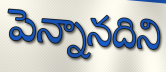
పెన్నానదిని